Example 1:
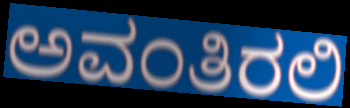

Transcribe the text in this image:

ಅವಂತಿರಲಿ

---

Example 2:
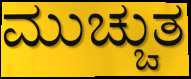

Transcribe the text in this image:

ಮುಚ್ಚುತ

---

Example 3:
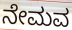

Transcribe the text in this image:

ನೇಮವ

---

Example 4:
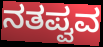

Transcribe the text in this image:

ನತಪ್ವವ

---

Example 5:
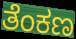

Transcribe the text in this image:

ತೆಂಕಣ